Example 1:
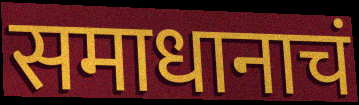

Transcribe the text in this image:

समाधानाचं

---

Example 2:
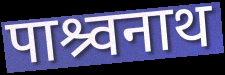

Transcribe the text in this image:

पाश्र्वनाथ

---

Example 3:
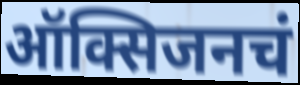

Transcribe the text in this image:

ऑक्सिजनचं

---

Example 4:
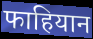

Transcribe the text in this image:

फाहियान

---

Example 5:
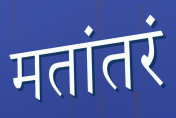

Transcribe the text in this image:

मतांतरं